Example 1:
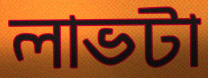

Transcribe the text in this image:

লাভটা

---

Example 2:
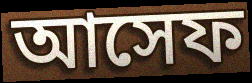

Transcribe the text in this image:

আসেফ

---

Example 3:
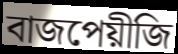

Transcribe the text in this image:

বাজপেয়ীজি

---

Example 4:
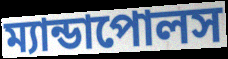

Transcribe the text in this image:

ম্যান্ডাপোলস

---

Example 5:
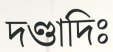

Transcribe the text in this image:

দণ্ডাদিঃ